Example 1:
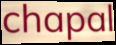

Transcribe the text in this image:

chapal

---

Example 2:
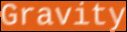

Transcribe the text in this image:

Gravity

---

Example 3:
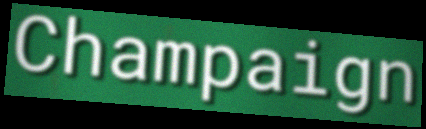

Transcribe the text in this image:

Champaign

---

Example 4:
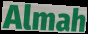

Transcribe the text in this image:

Almah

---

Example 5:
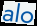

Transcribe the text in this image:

alo